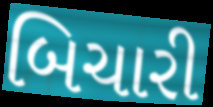
બિચારી